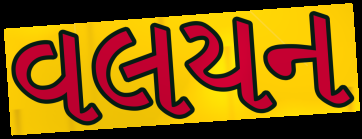
વલયન